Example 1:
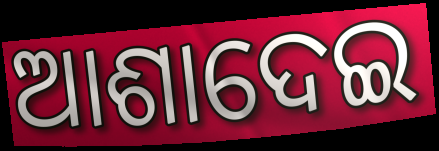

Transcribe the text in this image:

ଆଶାଦେଇ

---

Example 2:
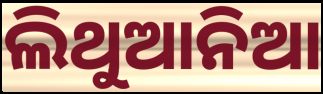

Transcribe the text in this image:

ଲିଥୁଆନିଆ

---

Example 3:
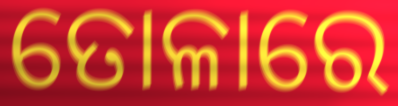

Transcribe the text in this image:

ତୋଳାରେ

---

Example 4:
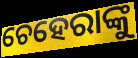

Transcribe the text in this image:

ଚେହେରାଙ୍କୁ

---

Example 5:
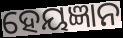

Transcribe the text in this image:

ହେୟଜ୍ଞାନ